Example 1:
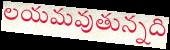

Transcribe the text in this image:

లయమవుతున్నది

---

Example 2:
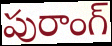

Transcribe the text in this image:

పురాంగ్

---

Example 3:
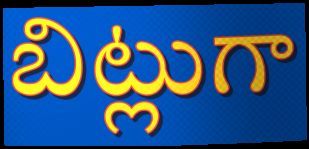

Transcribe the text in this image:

బిట్లుగా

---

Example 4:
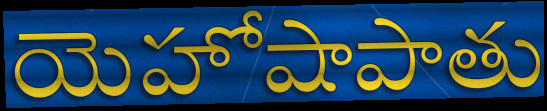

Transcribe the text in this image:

యెహోషాపాతు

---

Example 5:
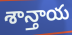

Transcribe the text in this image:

శాన్తాయ